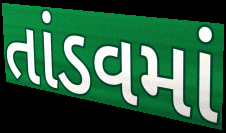
તાંડવમાં